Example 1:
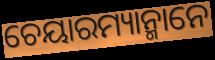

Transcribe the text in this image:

ଚେୟାରମ୍ୟାନ୍ମାନେ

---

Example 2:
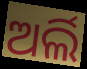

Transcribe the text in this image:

ଅର୍ଲି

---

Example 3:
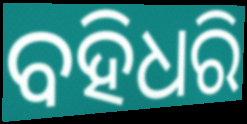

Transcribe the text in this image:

ବହିଧରି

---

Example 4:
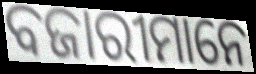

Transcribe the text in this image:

ବଜାରୀମାନେ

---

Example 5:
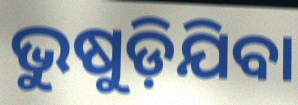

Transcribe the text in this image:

ଭୁଷୁଡ଼ିଯିବା